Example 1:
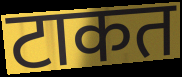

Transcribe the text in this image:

टाकत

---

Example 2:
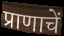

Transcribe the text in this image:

प्राणाचें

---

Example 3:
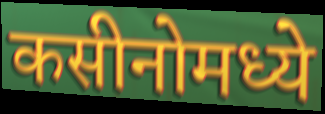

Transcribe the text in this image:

कसीनोमध्ये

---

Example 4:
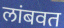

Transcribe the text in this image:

लांबवत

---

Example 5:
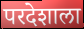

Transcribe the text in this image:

परदेशाला